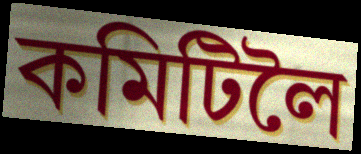
কমিটিলৈ